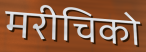
मरीचिको